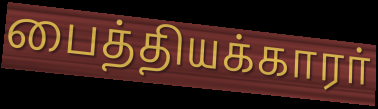
பைத்தியக்காரர்